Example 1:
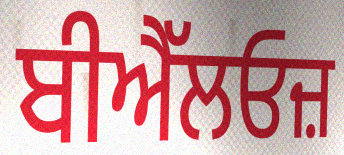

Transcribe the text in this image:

ਬੀਐੱਲਓਜ਼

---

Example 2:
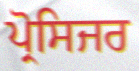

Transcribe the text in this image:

ਪ੍ਰੋਸਿਜਰ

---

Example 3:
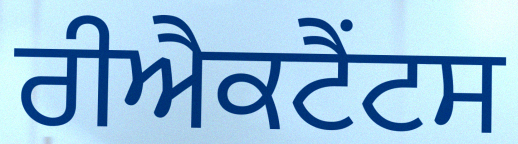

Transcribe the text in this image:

ਰੀਐਕਟੈਂਟਸ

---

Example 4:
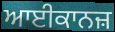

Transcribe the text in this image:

ਆਈਕਾਨਜ਼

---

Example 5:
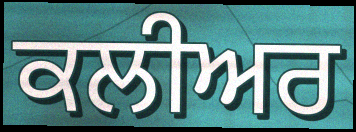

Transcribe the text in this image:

ਕਲੀਅਰ